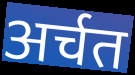
अर्चत